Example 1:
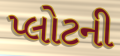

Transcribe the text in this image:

પ્લોટની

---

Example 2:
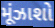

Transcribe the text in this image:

મૂંઝાશો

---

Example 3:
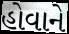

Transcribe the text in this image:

હોવાને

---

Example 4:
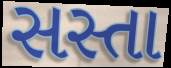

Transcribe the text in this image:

સસ્તા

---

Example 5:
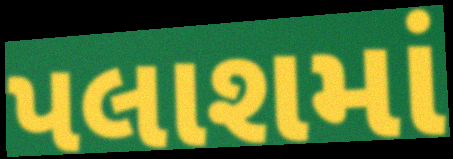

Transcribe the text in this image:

પલાશમાં